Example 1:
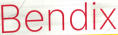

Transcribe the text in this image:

Bendix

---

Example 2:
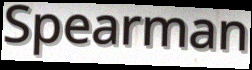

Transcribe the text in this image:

Spearman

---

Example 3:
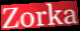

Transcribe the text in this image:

Zorka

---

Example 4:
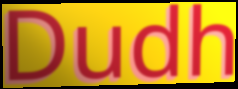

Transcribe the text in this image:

Dudh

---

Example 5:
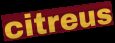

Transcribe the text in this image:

citreus